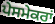
ਪੇਸਮੇਕਰਾਂ